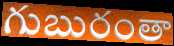
గుబురంతా